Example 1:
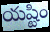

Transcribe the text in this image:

యష్టిం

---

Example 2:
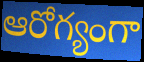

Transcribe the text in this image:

ఆరోగ్యంగా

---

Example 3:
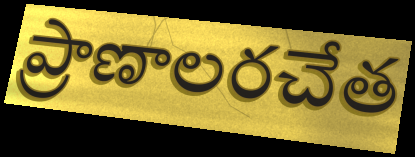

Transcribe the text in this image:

ప్రాణాలరచేత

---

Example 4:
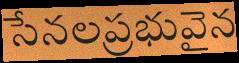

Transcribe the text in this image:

సేనలప్రభువైన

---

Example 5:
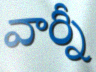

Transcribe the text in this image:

వార్నీ